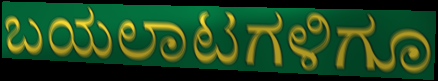
ಬಯಲಾಟಗಳಿಗೂ